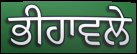
ਭੀਹਾਵਲੇ